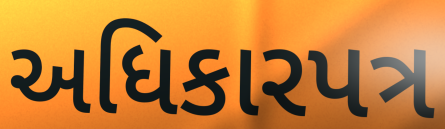
અધિકારપત્ર